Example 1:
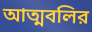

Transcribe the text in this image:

আত্মবলির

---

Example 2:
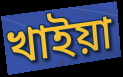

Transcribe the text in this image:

খাইয়া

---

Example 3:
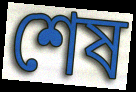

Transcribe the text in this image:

শেষ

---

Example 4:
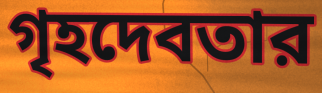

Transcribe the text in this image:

গৃহদেবতার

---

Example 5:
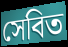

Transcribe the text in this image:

সেবিত